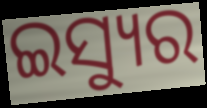
ଇସ୍ୟୁର